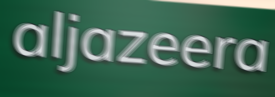
aljazeera